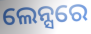
ଲେନ୍ସରେ